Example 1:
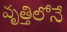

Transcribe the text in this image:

వృత్తిలోనే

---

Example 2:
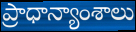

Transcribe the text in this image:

ప్రాధాన్యాంశాలు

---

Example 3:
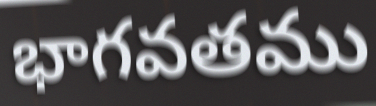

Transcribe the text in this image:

భాగవతము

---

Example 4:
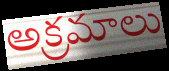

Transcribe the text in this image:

అక్రమాలు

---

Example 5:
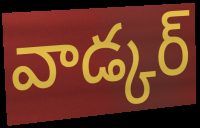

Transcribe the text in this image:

వాడ్కర్